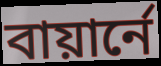
বায়ার্নে